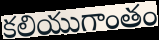
కలియుగాంతం